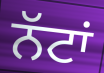
ਨੱਟਾਂ